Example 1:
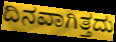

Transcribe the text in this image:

ದಿನವಾಗಿತ್ತದು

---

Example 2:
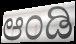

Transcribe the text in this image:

ಆಂಡಿ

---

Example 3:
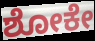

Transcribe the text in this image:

ಶೋಕೇ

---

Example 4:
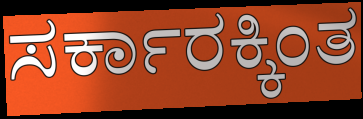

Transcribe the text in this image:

ಸರ್ಕಾರಕ್ಕಿಂತ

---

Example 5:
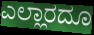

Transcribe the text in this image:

ಎಲ್ಲಾರದೂ